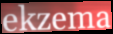
ekzema